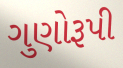
ગુણોરૂપી